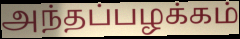
அந்தப்பழக்கம்